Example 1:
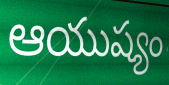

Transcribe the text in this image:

ఆయుష్యం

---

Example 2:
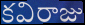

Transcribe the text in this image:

కవిరాజు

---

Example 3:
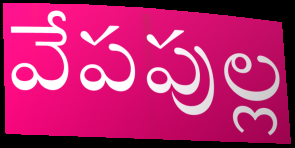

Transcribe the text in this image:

వేపపుల్ల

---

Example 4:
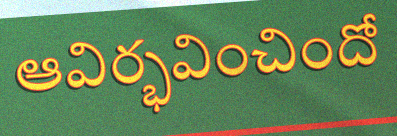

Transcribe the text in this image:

ఆవిర్భవించిందో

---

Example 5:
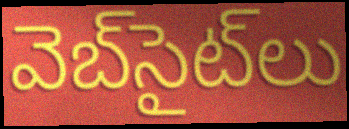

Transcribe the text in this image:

వెబ్‌సైట్‌లు